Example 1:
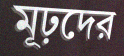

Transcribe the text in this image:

মূঢ়দের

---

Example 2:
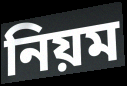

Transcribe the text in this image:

নিয়ম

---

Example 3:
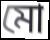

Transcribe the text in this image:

মো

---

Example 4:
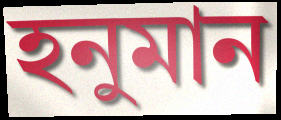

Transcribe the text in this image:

হনুমান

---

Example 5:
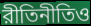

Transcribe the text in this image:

রীতিনীতিও